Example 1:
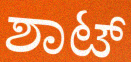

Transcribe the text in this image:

ಶಾಟ್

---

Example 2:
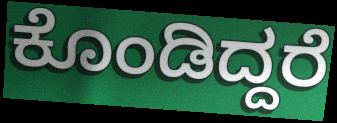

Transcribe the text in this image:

ಕೊಂಡಿದ್ದರೆ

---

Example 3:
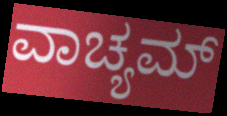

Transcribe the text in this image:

ವಾಚ್ಯಮ್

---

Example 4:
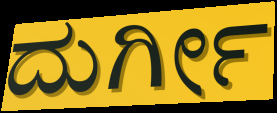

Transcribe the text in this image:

ದುರ್ಗೀ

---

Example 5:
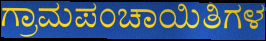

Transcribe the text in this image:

ಗ್ರಾಮಪಂಚಾಯಿತಿಗಳ